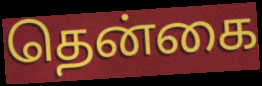
தென்கை